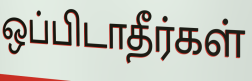
ஒப்பிடாதீர்கள்